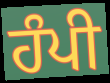
ਹੰਪੀ